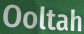
Ooltah